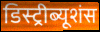
डिस्ट्रीब्यूशंस